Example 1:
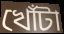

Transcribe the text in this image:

খোঁটা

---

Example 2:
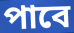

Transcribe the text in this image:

পাবে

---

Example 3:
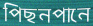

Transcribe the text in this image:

পিছনপানে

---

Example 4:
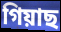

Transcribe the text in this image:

গিয়াছ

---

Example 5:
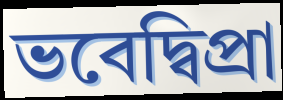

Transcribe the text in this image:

ভবেদ্বিপ্রা